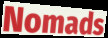
Nomads